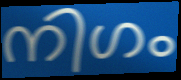
നിഗം